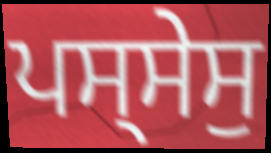
ਪਸ੍ਸੇਸੁ